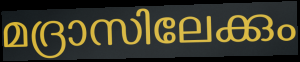
മദ്രാസിലേക്കും